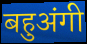
बहुअंगी